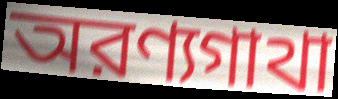
অরণ্যগাথা